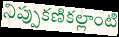
నిప్పుకణికల్లాంటి